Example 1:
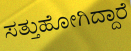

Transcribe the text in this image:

ಸತ್ತುಹೋಗಿದ್ದಾರೆ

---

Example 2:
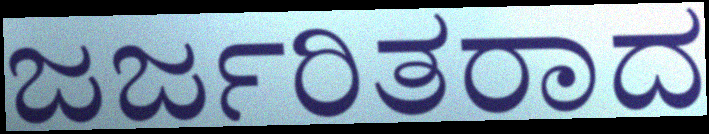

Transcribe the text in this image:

ಜರ್ಜರಿತರಾದ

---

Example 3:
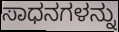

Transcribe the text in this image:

ಸಾಧನಗಳನ್ನು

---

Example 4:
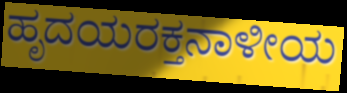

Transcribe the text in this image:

ಹೃದಯರಕ್ತನಾಳೀಯ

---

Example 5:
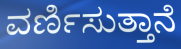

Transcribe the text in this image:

ವರ್ಣಿಸುತ್ತಾನೆ